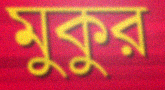
মুকুর